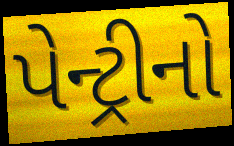
પેન્ટ્રીનો